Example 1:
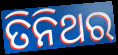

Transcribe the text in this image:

ତିନିଥର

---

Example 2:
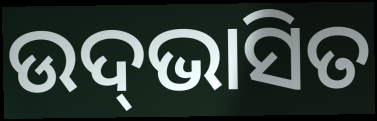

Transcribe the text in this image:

ଉଦ୍‍ଭାସିତ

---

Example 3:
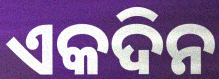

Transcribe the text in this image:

ଏକଦିନ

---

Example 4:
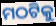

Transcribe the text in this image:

ମଠଟିକୁ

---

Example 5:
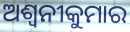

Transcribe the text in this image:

ଅଶ୍ୱନୀକୁମାର